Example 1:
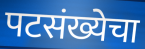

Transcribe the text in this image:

पटसंख्येचा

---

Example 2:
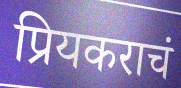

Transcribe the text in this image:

प्रियकराचं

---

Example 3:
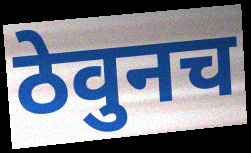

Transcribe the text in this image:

ठेवुनच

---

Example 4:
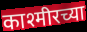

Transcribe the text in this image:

काश्मीरच्या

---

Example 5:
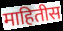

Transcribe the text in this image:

माहितीस